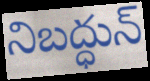
నిబద్ధున్